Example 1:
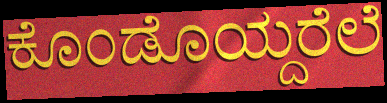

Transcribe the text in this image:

ಕೊಂಡೊಯ್ದರೆಲೆ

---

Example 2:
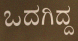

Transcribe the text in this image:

ಒದಗಿದ್ದ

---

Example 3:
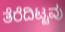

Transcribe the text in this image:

ತೆರೆದಿಟ್ಟವು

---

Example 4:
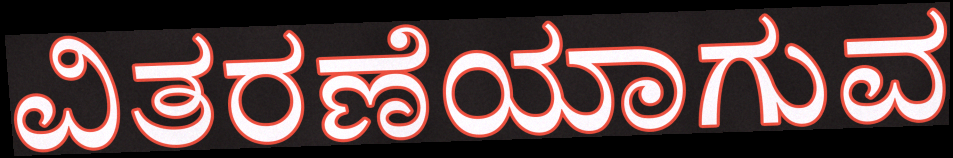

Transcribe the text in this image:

ವಿತರಣೆಯಾಗುವ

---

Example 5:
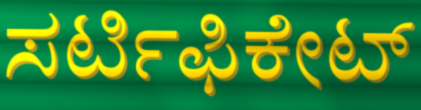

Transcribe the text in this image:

ಸರ್ಟಿಫಿಕೇಟ್